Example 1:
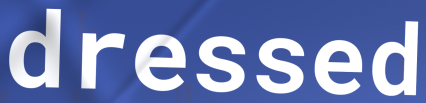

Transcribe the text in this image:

dressed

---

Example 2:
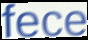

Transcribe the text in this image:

fece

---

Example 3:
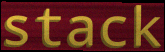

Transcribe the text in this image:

stack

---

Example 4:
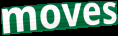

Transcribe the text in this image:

moves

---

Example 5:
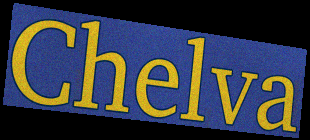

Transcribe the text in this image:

Chelva